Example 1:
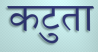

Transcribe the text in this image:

कटुता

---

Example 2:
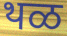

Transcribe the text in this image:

थळ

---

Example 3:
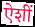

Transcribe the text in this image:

ऐशीं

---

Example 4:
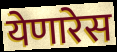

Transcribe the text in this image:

येणारेस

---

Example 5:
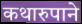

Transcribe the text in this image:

कथारुपाने